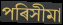
পৰিসীমা